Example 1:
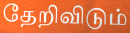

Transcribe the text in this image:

தேறிவிடும்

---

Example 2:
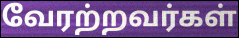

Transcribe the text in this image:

வேரற்றவர்கள்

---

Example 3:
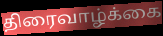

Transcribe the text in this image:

திரைவாழ்க்கை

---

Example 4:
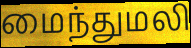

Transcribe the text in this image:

மைந்துமலி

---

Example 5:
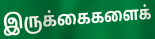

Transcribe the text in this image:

இருக்கைகளைக்